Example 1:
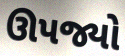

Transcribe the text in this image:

ઊપજ્યો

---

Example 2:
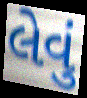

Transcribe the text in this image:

લેવું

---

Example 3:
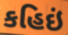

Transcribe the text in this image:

કહિઇં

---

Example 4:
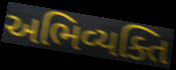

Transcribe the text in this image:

અભિવ્યક્તિ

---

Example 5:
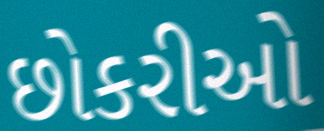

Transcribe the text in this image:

છોકરીઓ